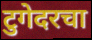
टुगेदरचा